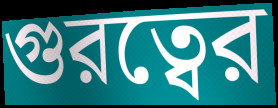
গুরত্বের